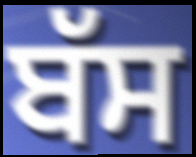
ਬੱਸ